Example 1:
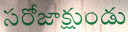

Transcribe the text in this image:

సరోజాక్షుండు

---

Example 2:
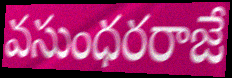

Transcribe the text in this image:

వసుంధరరాజే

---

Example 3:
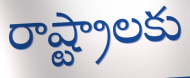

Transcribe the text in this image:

రాష్ట్రాలకు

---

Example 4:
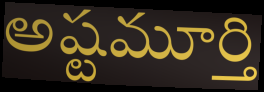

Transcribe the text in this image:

అష్టమూర్తి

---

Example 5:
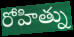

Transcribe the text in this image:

రోహిత్ను